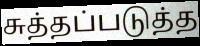
சுத்தப்படுத்த